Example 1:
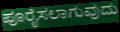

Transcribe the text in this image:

ಪೂರೈಸಲಾಗುವುದು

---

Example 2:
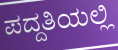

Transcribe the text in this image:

ಪದ್ದತಿಯಲ್ಲಿ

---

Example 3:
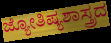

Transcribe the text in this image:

ಜ್ಯೋತಿಷ್ಯಶಾಸ್ತ್ರದ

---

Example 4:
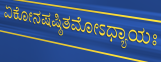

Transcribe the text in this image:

ಏಕೋನಷಷ್ಠಿತಮೋಽಧ್ಯಾಯಃ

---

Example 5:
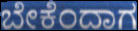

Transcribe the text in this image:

ಬೇಕೆಂದಾಗ